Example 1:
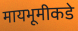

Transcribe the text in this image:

मायभूमीकडे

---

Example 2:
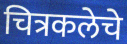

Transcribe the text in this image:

चित्रकलेचे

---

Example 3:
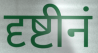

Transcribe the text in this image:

दृष्टीनं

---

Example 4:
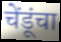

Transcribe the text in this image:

चेंडूंचा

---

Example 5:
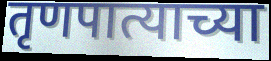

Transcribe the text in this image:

तृणपात्याच्या